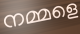
നമ്മളെ